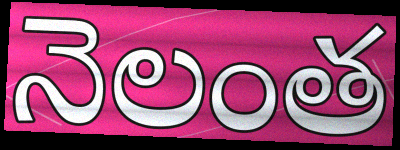
నెలంత